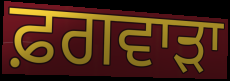
ਫ਼ਗਵਾੜਾ